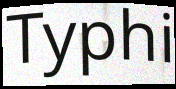
Typhi